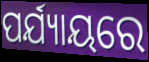
ପର୍ଯ୍ୟାୟରେ